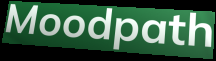
Moodpath